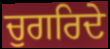
ਚੁਗਰਿਦੇ